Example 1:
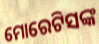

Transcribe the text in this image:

ମୋରେଟିସଙ୍କ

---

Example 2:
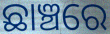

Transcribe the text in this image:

ଛାଞ୍ଚରେ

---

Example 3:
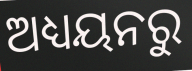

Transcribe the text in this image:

ଅଧ୍ୟୟନରୁ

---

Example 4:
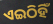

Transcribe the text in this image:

ଏଇଠିହିଁ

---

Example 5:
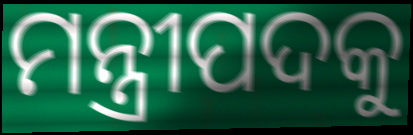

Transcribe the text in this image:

ମନ୍ତ୍ରୀପଦକୁ